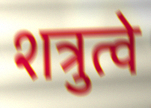
शत्रुत्वे